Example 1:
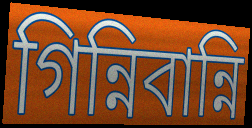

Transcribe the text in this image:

গিন্নিবান্নি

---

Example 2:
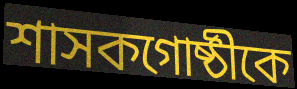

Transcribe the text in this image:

শাসকগোষ্ঠীকে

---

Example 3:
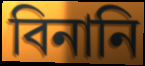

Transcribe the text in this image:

বিনানি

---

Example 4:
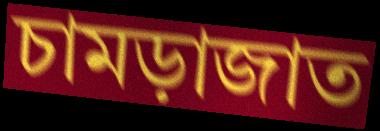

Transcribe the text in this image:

চামড়াজাত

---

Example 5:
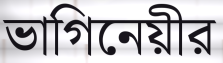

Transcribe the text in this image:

ভাগিনেয়ীর